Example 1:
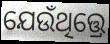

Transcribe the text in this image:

ଯେଉଁଥିତ୍ତ୍ରେ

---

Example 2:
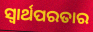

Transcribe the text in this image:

ସ୍ଵାର୍ଥପରତାର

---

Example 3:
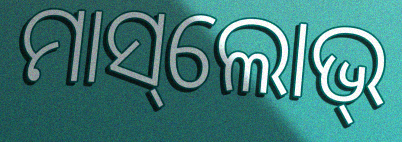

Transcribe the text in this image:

ମାସ୍‌ଲୋଭ୍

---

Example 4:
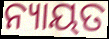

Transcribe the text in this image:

ନ୍ୟାୟତ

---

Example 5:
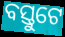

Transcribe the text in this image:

ବସ୍ତୁଟେ